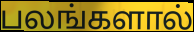
பலங்களால்